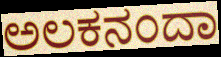
ಅಲಕನಂದಾ